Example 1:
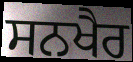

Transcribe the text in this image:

ਸਨਖੈਰ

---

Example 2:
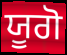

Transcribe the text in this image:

ਯੂਗੋ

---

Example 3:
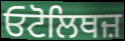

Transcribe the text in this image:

ਓਟੋਲਿਥਜ਼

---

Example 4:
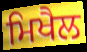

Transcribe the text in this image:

ਮਿਖੈਲ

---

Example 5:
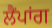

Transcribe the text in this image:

ਲੈਂਪਾਂਗ